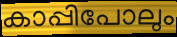
കാപ്പിപോലും